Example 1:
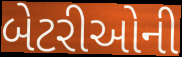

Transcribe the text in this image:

બેટરીઓની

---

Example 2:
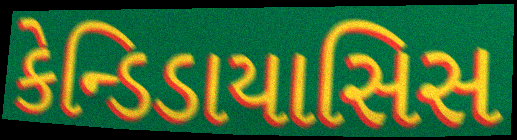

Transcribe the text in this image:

કેન્ડિડાયાસિસ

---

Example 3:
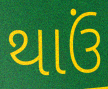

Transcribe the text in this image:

થાઉં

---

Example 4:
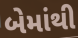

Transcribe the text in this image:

બેમાંથી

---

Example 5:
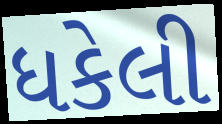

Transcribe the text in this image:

ધકેલી